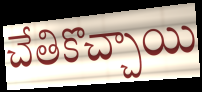
చేతికొచ్చాయి